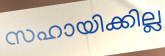
സഹായിക്കില്ല